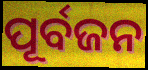
ପୂର୍ବଜନ